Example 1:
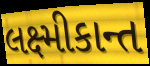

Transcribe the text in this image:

લક્ષ્મીકાન્ત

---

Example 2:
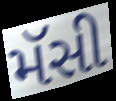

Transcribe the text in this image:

મૅસી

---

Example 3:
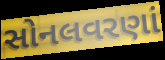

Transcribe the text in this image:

સોનલવરણાં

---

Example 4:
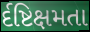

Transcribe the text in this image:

ર્દષ્ટિક્ષમતા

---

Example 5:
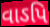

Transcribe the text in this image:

વાઽપિ